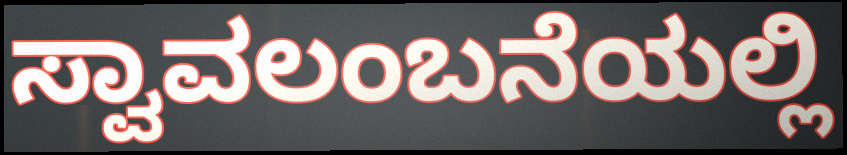
ಸ್ವಾವಲಂಬನೆಯಲ್ಲಿ